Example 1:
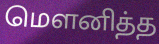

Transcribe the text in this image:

மௌனித்த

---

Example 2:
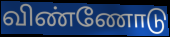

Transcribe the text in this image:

விண்ணோடு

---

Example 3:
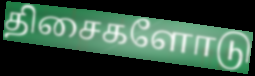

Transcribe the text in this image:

திசைகளோடு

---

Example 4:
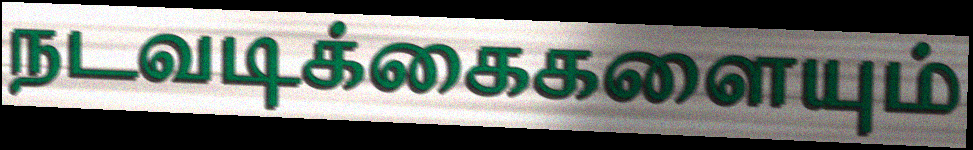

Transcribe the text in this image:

நடவடிக்கைகளையும்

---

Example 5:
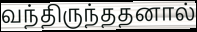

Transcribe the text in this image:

வந்திருந்ததனால்